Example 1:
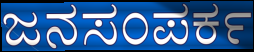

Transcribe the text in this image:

ಜನಸಂಪರ್ಕ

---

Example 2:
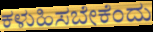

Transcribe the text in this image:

ಕಳುಹಿಸಬೇಕೆಂದು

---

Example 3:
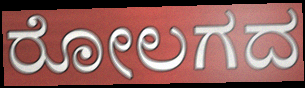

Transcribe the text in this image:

ರೋಲಗದ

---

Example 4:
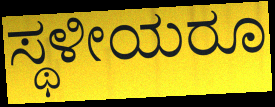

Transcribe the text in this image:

ಸ್ಥಳೀಯರೂ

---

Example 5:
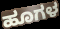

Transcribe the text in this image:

ಹೂಗಳ